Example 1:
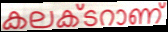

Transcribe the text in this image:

കലക്ടറാണ്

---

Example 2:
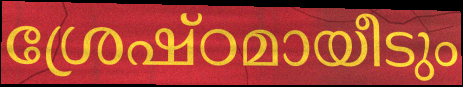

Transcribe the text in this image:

ശ്രേഷ്ഠമായീടും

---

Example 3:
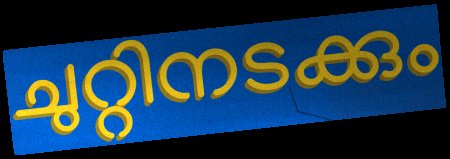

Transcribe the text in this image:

ചുറ്റിനടക്കും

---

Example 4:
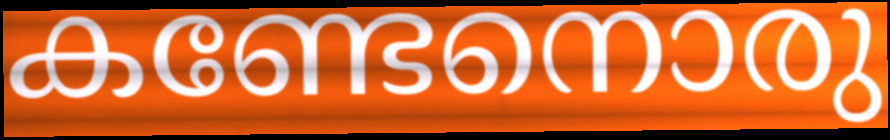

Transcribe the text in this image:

കണ്ടേനൊരു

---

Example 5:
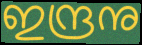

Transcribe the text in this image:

ഇന്ദ്രനു